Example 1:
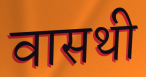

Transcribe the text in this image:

वासथी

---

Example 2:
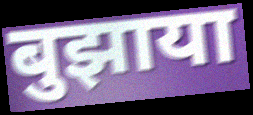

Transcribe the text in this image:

बुझाया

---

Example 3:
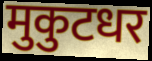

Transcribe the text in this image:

मुकुटधर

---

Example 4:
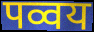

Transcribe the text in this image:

पव्वय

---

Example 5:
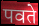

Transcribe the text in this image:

पवते